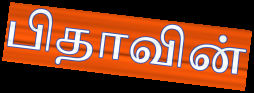
பிதாவின்